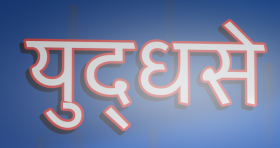
युद्धसे